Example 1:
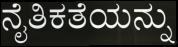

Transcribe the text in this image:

ನೈತಿಕತೆಯನ್ನು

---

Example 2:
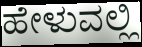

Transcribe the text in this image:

ಹೇಳುವಲ್ಲಿ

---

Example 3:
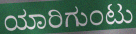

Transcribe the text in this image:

ಯಾರಿಗುಂಟು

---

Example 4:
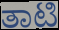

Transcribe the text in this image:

ತಾಟಿ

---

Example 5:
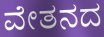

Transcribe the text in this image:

ವೇತನದ